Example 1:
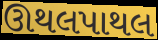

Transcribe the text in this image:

ઊથલપાથલ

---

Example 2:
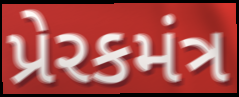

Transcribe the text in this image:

પ્રેરકમંત્ર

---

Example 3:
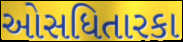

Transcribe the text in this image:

ઓસધિતારકા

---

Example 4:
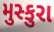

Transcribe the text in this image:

મુસ્કુરા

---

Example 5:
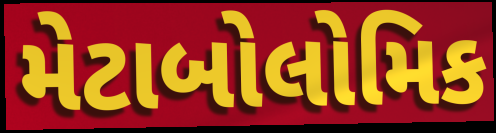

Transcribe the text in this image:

મેટાબોલોમિક